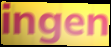
ingen